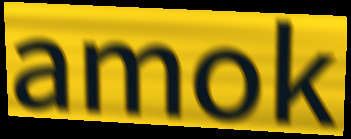
amok